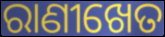
ରାଣୀଖେତ